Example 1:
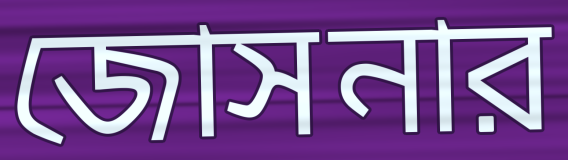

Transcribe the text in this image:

জোসনার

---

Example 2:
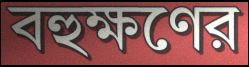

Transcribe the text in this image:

বহুক্ষণের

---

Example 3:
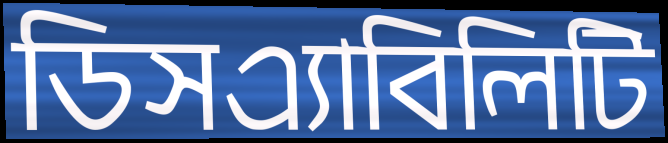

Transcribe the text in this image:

ডিসএ্যাবিলিটি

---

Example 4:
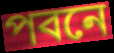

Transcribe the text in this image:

পবনে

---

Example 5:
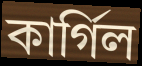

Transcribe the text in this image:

কার্গিল